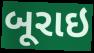
બૂરાઇ